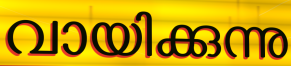
വായിക്കുന്നു